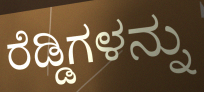
ರೆಡ್ಡಿಗಳನ್ನು